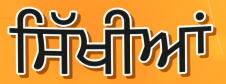
ਸਿੱਖੀਆਂ